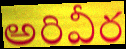
అరివీర